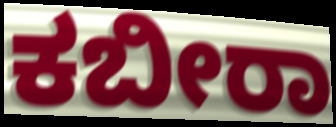
ಕಬೀರಾ